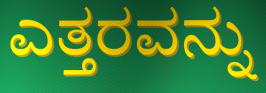
ಎತ್ತರವನ್ನು